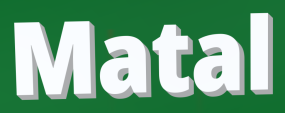
Matal